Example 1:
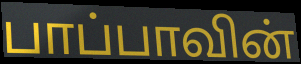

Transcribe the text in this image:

பாப்பாவின்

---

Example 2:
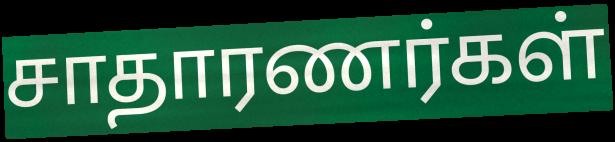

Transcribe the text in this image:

சாதாரணர்கள்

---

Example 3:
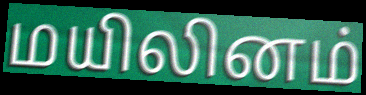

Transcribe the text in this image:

மயிலினம்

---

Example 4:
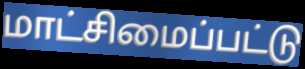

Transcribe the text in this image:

மாட்சிமைப்பட்டு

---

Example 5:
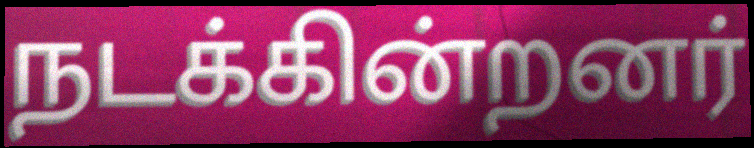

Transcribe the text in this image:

நடக்கின்றனர்